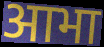
आभा